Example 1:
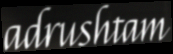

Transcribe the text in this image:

adrushtam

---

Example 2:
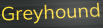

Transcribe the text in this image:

Greyhound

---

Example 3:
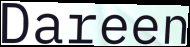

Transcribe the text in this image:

Dareen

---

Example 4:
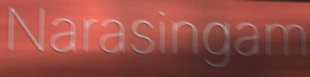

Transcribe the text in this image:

Narasingam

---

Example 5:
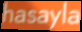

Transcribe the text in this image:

hasayla